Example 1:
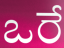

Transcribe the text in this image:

ఒరే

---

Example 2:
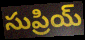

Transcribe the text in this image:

సుప్రియ్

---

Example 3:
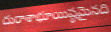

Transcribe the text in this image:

దురాశాభూయిష్ఠమైనది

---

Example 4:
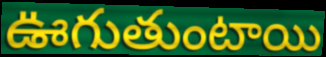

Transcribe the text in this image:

ఊగుతుంటాయి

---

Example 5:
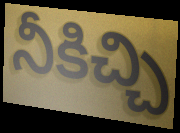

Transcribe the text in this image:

నీకిచ్చి